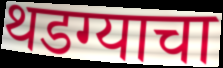
थडग्याचा